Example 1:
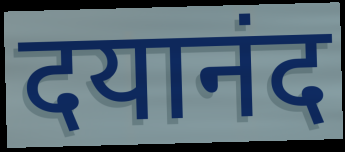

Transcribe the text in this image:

दयानंद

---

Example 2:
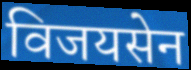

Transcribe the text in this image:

विजयसेन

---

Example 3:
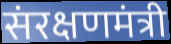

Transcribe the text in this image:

संरक्षणमंत्री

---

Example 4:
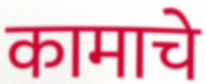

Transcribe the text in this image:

कामाचे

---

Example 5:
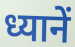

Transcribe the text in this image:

ध्यानें